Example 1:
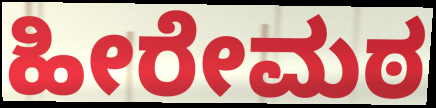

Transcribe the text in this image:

ಹೀರೇಮಠ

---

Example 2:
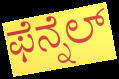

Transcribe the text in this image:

ಫೆನ್ನೆಲ್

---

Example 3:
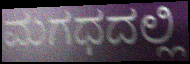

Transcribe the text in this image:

ಮಗಧದಲ್ಲಿ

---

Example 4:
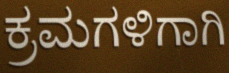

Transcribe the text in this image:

ಕ್ರಮಗಳಿಗಾಗಿ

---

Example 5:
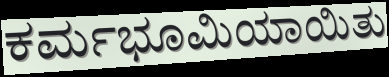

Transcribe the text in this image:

ಕರ್ಮಭೂಮಿಯಾಯಿತು